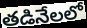
తడినేలలో